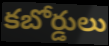
కబోర్డులు